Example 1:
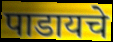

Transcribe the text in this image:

पाडायचे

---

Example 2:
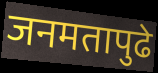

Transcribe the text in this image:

जनमतापुढे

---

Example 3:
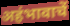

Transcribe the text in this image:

अहंभावाचें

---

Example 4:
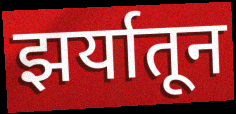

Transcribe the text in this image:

झर्यातून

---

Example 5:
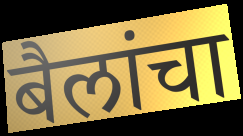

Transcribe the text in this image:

बैलांचा